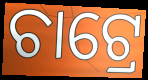
ଚାଟ୍ରେ